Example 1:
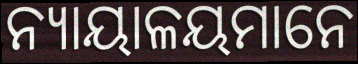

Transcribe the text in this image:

ନ୍ୟାୟାଳୟମାନେ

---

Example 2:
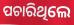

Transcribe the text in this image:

ପଚାରିଥିଲେ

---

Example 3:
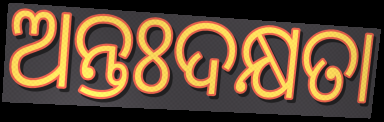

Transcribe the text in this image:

ଅନ୍ତଃଦକ୍ଷତା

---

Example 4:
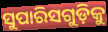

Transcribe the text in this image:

ସୁପାରିସଗୁଡ଼ିକୁ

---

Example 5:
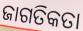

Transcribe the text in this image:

ଜାଗତିକତା